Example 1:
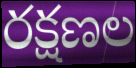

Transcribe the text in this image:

రక్షణల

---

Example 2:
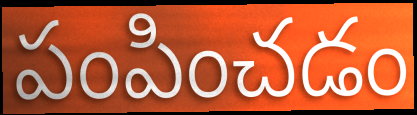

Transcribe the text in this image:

పంపించడం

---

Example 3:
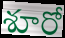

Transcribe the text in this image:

శూరో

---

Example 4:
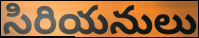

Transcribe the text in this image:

సిరియనులు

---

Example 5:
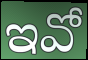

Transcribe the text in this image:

ఇవో